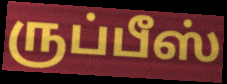
ருப்பீஸ்